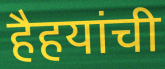
हैहयांची